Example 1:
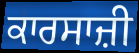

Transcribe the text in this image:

ਕਾਰਸਾਜ਼ੀ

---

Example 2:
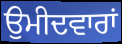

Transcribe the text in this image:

ਉੁਮੀਦਵਾਰਾਂ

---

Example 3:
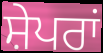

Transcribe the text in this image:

ਸ਼ੇਪਰਾਂ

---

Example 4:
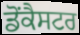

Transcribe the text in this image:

ਡੋਂਕੈਸਟਰ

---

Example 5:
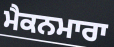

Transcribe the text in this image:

ਮੈਕਨਮਾਰਾ